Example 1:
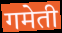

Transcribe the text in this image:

गमेती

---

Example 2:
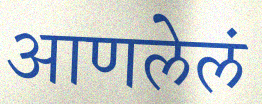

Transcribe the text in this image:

आणलेलं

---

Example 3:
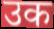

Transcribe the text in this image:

उक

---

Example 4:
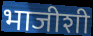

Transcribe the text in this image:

भाजीशी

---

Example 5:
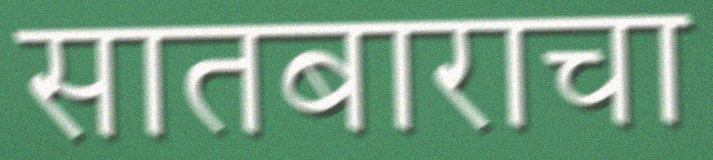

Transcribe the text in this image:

सातबाराचा